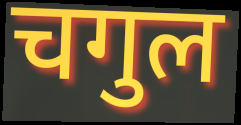
चगुल